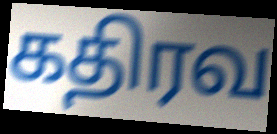
கதிரவ